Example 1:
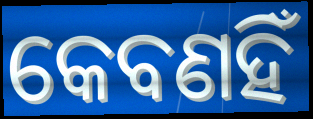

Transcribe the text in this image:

କେବଣହିଁ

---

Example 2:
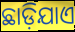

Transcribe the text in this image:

ଛାଡ଼ିଯାଏ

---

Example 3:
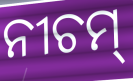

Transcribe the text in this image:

ନୀଚମ୍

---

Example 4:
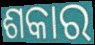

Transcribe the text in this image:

ଶକାର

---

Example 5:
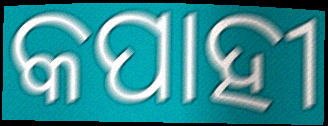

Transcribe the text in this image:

କପାହୀ